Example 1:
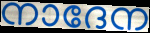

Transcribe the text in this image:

നാദേന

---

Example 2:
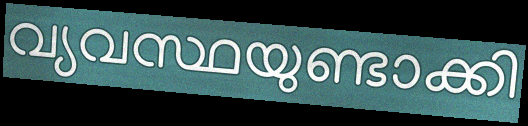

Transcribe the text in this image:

വ്യവസ്ഥയുണ്ടാക്കി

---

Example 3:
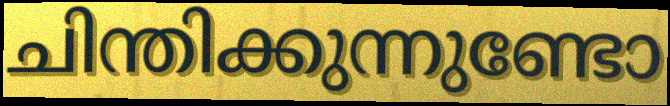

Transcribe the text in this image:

ചിന്തിക്കുന്നുണ്ടോ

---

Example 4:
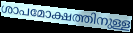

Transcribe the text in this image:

ശാപമോക്ഷത്തിനുള്ള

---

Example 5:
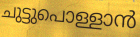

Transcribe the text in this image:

ചുട്ടുപൊള്ളാൻ